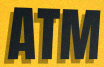
ATM